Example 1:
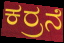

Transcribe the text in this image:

ಕರ್ರನೆ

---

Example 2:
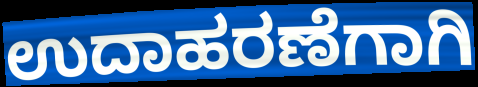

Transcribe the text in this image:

ಉದಾಹರಣೆಗಾಗಿ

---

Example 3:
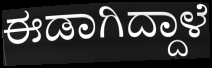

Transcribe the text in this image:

ಈಡಾಗಿದ್ದಾಳೆ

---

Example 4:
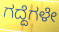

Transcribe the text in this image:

ಗದ್ದೆಗಳೇ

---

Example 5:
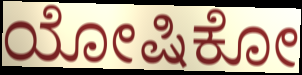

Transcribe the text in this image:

ಯೋಷಿಕೋ